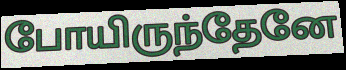
போயிருந்தேனே